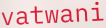
vatwani